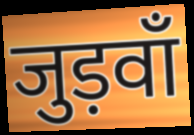
जुड़वाँ